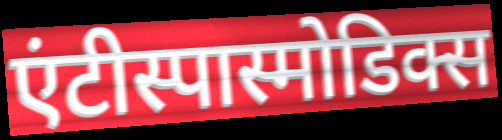
एंटीस्पास्मोडिक्स